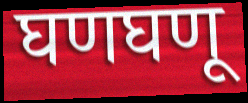
घणघणू